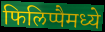
फिलिप्पैमध्ये